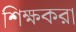
শিক্ষকরা